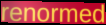
renormed